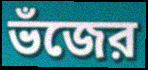
ভঁজের